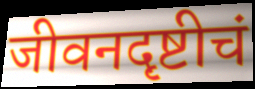
जीवनदृष्टीचं